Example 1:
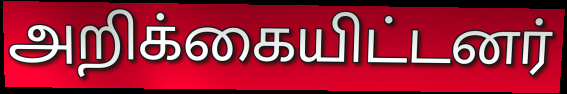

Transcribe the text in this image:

அறிக்கையிட்டனர்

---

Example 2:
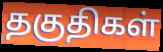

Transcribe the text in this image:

தகுதிகள்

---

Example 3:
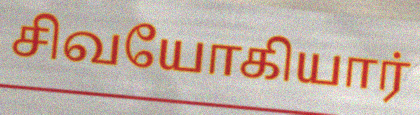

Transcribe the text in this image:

சிவயோகியார்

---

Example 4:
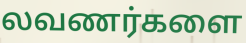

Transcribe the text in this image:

லவணர்களை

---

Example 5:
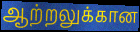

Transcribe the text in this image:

ஆற்றலுக்கான